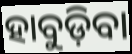
ହାବୁଡ଼ିବା